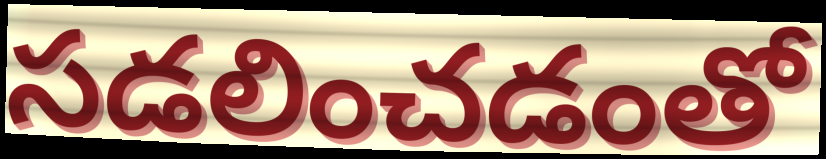
సడలించడంతో